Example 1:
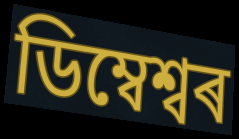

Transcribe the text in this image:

ডিম্বেশ্বৰ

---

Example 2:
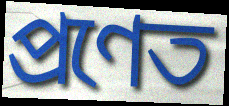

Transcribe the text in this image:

প্ৰণেত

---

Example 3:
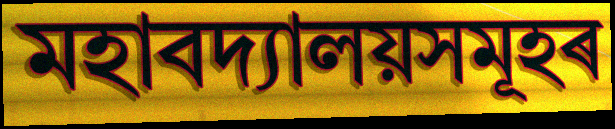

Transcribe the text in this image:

মহাবদ্যালয়সমূহৰ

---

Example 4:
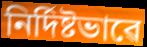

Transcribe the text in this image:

নিৰ্দিষ্টভাৱে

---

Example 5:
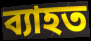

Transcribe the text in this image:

ব্যাহত